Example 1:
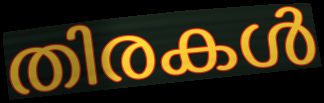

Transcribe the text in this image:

തിരകൾ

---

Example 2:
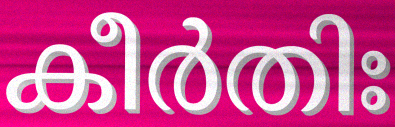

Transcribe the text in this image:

കീർതിഃ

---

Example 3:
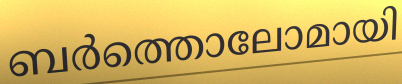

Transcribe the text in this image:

ബർത്തൊലോമായി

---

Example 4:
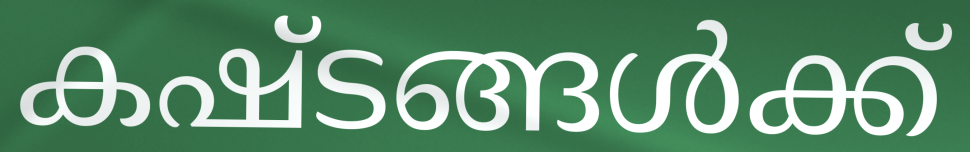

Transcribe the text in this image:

കഷ്ടങ്ങൾക്ക്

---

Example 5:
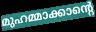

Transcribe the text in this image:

മുഹമ്മാക്കാന്റെ